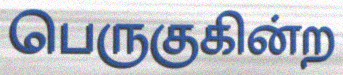
பெருகுகின்ற